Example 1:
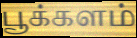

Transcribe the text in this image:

பூக்களம்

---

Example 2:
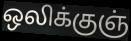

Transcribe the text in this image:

ஒலிக்குஞ்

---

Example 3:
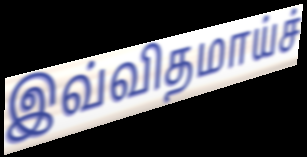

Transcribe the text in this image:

இவ்விதமாய்ச்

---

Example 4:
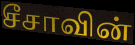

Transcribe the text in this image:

சீசாவின்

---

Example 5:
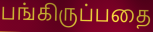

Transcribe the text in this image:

பங்கிருப்பதை